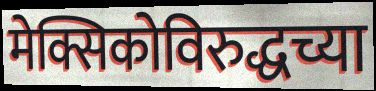
मेक्सिकोविरुद्धच्या